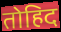
तोहिद